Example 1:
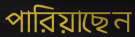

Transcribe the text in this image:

পারিয়াছেন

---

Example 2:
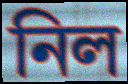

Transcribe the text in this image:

নিল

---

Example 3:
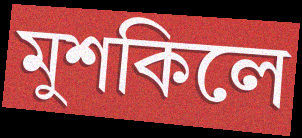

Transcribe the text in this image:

মুশকিলে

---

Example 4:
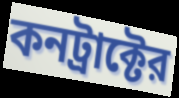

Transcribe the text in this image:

কনট্রাক্টের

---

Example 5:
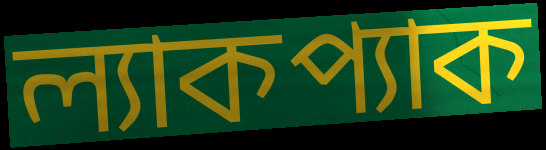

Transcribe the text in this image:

ল্যাকপ্যাক